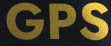
GPS